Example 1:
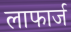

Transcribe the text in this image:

लाफार्ज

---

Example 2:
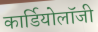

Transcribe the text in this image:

कार्डियोलॉजी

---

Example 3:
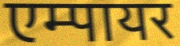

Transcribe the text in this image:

एम्पायर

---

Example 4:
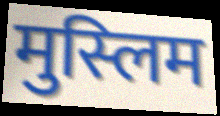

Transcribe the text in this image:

मुस्‍लिम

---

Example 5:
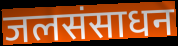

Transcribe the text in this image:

जलसंसाधन